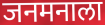
जनमनाला